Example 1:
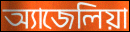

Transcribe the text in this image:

অ্যাজেলিয়া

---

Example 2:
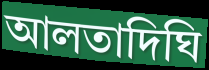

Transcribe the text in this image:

আলতাদিঘি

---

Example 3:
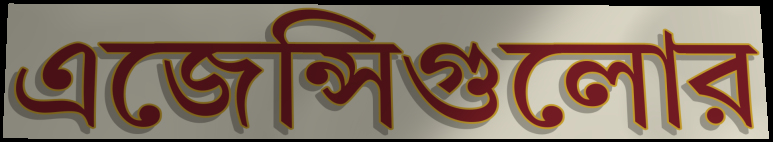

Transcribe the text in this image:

এজেন্সিগুলোর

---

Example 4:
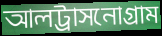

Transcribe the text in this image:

আলট্রাসনোগ্রাম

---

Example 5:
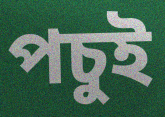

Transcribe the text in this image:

পচুই